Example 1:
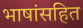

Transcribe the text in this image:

भाषांसहित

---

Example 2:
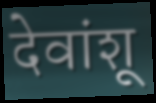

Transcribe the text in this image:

देवांशू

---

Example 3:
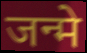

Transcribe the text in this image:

जन्मे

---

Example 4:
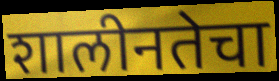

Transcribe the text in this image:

शालीनतेचा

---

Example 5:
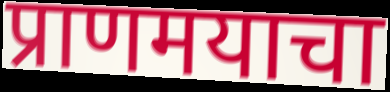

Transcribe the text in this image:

प्राणमयाचा